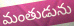
మంతుడును